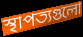
স্থাপত্যগুলো